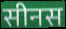
सीनस